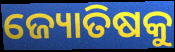
ଜ୍ୟୋତିଷକୁ